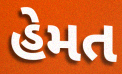
હેમત